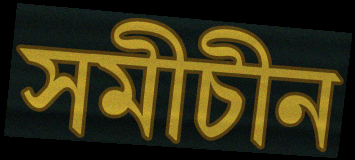
সমীচীন